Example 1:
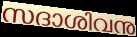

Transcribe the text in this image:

സദാശിവനു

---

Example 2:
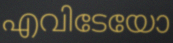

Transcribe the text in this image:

എവിടേയോ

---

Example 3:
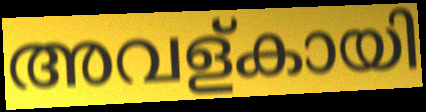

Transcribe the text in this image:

അവള്കായി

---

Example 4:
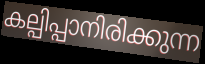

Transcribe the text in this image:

കല്പിപ്പാനിരിക്കുന്ന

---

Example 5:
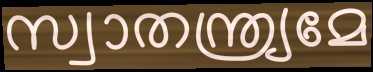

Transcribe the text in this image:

സ്വാതന്ത്ര്യമേ